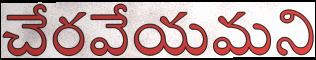
చేరవేయమని